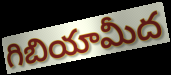
గిబియామీద